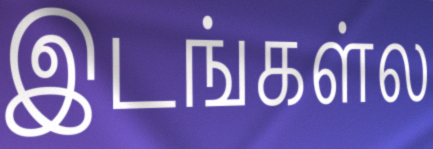
இடங்கள்ல